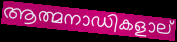
ആത്മനാഡികളാല്